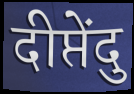
दीप्तेंदु